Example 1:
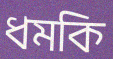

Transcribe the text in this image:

ধমকি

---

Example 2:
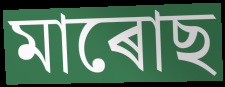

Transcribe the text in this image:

মাৰোছ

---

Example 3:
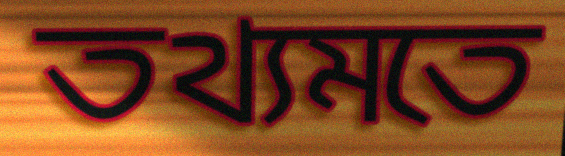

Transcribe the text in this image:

তথ্যমতে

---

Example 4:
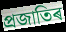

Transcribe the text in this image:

প্ৰজাতিৰ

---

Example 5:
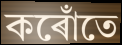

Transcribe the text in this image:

কৰোঁতে